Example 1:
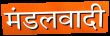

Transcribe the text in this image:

मंडलवादी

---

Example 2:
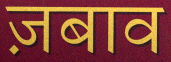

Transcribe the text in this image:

ज़बाव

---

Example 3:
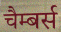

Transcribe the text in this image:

चैम्‍बर्स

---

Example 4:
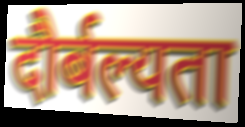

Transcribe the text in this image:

दौर्बल्यता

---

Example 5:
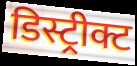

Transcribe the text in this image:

डिस्ट्रीक्ट